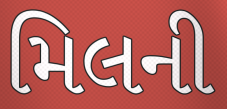
મિલની